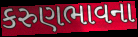
કરુણભાવના